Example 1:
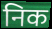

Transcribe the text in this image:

निक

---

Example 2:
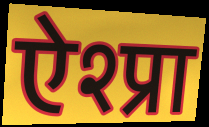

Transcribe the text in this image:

ऐश्प्रा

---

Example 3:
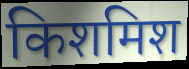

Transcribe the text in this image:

किशमिश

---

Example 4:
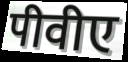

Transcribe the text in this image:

पीवीए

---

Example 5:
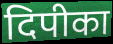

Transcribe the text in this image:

दिपीका